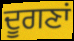
ਦੂਗਣਾਂ